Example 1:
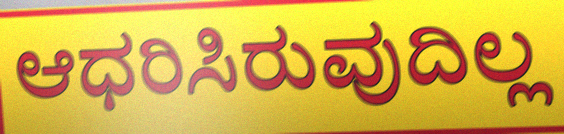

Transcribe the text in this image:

ಆಧರಿಸಿರುವುದಿಲ್ಲ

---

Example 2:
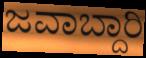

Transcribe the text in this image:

ಜವಾಬ್ದಾರಿ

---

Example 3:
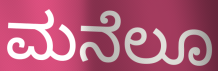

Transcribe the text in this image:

ಮನೆಲೂ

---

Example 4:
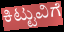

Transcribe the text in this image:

ಕಿಟ್ಟುವಿಗೆ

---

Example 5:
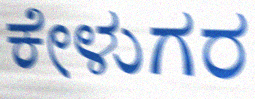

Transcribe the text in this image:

ಕೇಳುಗರ